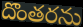
దొంతరను